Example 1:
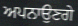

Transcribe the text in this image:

ਅਪਨਾਉਣਗੇ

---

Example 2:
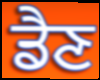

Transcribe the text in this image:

ਡੈਣ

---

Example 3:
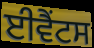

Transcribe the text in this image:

ਈਵੈਂਟਸ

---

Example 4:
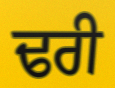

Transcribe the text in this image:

ਢਰੀ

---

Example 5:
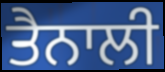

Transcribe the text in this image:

ਤੈਨਾਲੀ